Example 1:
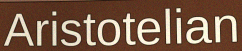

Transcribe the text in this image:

Aristotelian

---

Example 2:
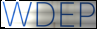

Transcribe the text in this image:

WDEP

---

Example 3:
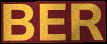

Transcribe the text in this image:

BER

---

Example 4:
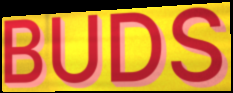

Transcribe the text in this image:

BUDS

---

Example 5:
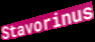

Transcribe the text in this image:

Stavorinus